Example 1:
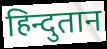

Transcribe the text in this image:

हिन्दुतान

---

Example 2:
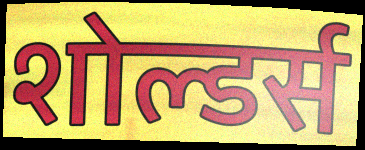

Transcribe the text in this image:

शोल्डर्स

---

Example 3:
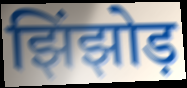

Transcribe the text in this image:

झिंझोड़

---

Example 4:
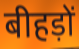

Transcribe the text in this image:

बीहड़ों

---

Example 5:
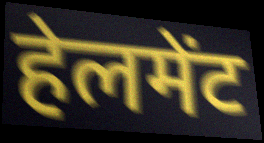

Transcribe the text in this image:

हेलमेंट